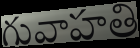
గువాహతి